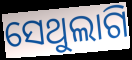
ସେଥୁଲାଗି